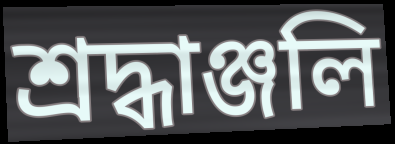
শ্ৰদ্ধাঞ্জলি